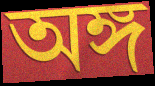
অঙ্গ